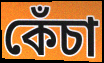
কেঁচা